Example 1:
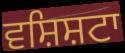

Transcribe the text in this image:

ਵਸ਼ਿਸ਼ਟਾ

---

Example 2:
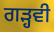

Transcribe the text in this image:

ਗੜ੍ਹਵੀ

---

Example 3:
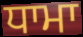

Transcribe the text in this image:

ਧਾਮਾ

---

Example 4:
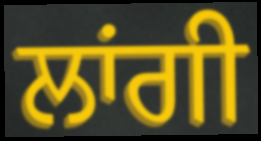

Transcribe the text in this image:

ਲਾਂਗੀ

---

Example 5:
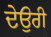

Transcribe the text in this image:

ਦੇਉਰੀ